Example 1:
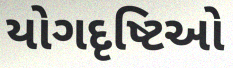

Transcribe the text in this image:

યોગદૃષ્ટિઓ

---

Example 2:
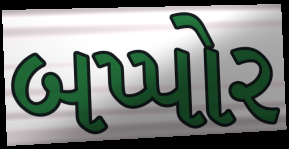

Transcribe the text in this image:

બપ્પોર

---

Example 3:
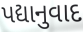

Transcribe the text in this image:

પદ્યાનુવાદ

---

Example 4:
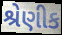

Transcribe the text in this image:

શ્રેણીક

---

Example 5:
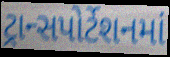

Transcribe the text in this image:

ટ્રાન્સપોર્ટેશનમાં